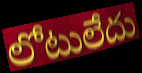
లోటులేదు